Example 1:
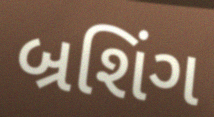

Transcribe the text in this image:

બ્રશિંગ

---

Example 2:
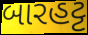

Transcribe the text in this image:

બારહટ્ટ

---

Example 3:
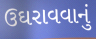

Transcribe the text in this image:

ઉઘરાવવાનું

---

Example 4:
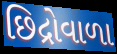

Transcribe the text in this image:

છિદ્રોવાળા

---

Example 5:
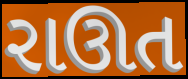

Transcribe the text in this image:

રાઊત